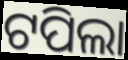
ଟପିଲା